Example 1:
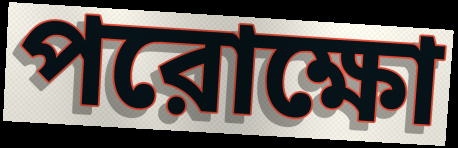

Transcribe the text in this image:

পরোক্ষো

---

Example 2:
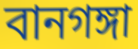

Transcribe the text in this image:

বানগঙ্গা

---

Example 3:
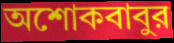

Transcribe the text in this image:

অশোকবাবুর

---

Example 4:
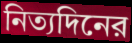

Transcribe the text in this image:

নিত্যদিনের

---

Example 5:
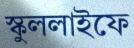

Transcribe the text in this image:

স্কুললাইফে